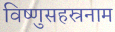
विष्णुसहस्रनाम